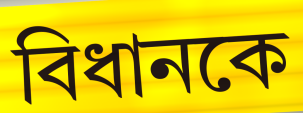
বিধানকে